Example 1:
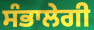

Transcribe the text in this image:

ਸੰਭਾਲੇਗੀ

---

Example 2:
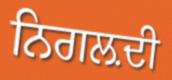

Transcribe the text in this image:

ਨਿਗਲ਼ਦੀ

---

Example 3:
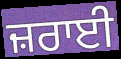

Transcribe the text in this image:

ਜ਼ਰਾਈ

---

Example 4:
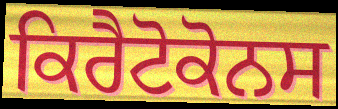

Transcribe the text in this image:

ਕਿਰੈਟੋਕੋਨਸ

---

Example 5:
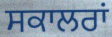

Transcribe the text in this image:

ਸਕਾਲਰਾਂ